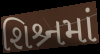
શિશ્ર્નમાં